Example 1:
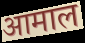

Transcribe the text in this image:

आमाल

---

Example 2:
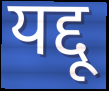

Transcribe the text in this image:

यद्दू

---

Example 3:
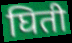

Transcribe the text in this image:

घिती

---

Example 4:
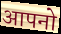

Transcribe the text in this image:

आपनो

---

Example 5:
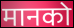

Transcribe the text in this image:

मानको